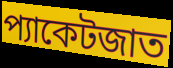
প্যাকেটজাত